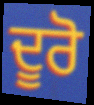
ਦੂਰੋ